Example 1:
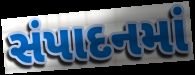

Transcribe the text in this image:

સંપાદનમાં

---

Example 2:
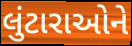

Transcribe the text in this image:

લુંટારાઓને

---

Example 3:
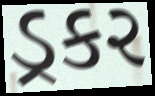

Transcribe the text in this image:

ડ્રકર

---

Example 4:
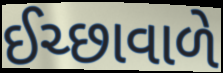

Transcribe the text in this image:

ઈચ્છાવાળે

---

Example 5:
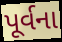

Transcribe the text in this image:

પૂર્વના